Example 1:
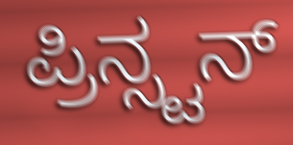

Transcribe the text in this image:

ಪ್ರಿನ್ಸ್ಟನ್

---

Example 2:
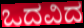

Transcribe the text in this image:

ಒದವಿದ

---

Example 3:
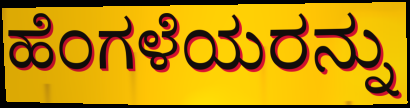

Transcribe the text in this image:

ಹೆಂಗಳೆಯರನ್ನು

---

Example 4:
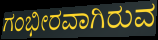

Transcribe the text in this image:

ಗಂಭೀರವಾಗಿರುವ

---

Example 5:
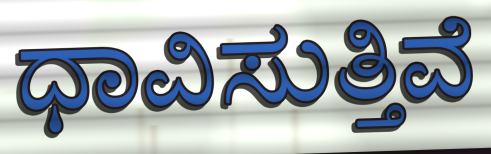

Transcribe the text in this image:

ಧಾವಿಸುತ್ತಿವೆ